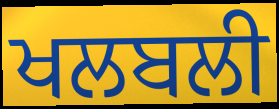
ਖਲਬਲੀ